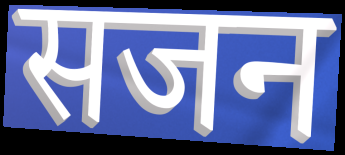
सजन